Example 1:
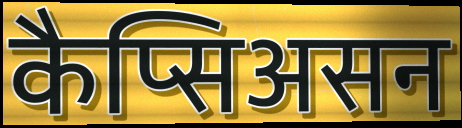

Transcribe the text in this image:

कैप्सिअसन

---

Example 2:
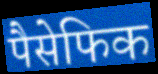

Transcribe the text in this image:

पैसेफिक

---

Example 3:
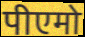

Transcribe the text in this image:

पीएमो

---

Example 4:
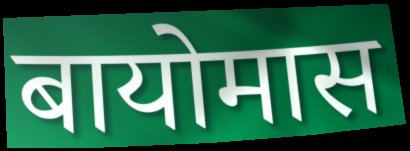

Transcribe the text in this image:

बायोमास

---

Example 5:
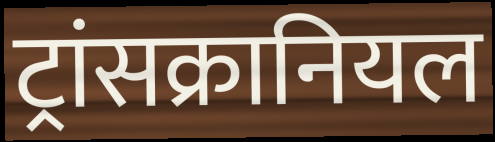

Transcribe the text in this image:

ट्रांसक्रानियल